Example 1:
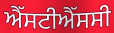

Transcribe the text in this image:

ਐੱਸਟੀਐੱਸਸੀ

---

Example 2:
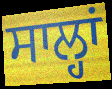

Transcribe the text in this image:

ਸਾਲ੍ਹਾਂ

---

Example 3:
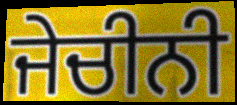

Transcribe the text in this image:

ਜੇਚੀਨੀ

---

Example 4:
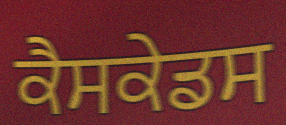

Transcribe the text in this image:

ਕੈਸਕੇਡਸ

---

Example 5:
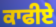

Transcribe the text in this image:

ਕਾਫੀਏ